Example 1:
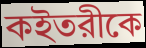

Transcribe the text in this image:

কইতরীকে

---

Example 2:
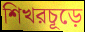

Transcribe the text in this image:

শিখরচূড়ে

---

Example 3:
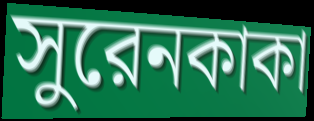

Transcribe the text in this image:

সুরেনকাকা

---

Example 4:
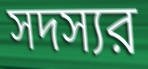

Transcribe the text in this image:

সদস্যর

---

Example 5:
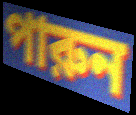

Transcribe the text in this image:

পারুন